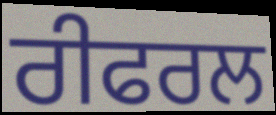
ਰੀਫਰਲ